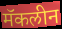
मॅकलीन